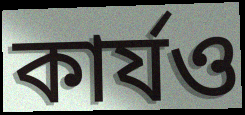
কাৰ্যও